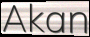
Akan